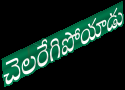
చెలరేగిపోయాడు